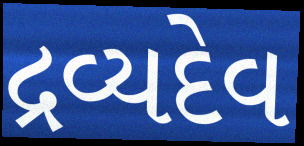
દ્રવ્યદેવ